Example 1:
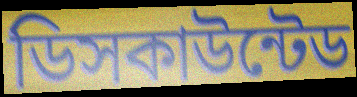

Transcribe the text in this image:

ডিসকাউন্টেড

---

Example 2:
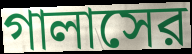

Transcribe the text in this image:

গালাসের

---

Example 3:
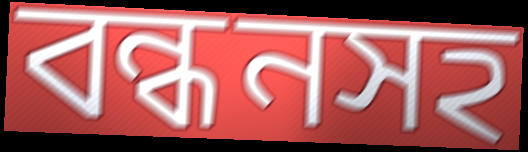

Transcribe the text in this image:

বন্ধনসহ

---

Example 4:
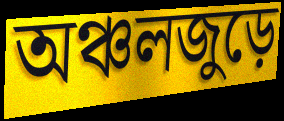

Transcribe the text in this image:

অঞ্চলজুড়ে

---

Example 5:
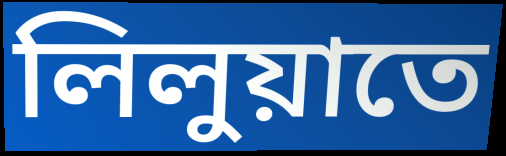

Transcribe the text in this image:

লিলুয়াতে